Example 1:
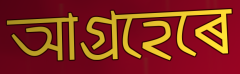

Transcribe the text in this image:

আগ্ৰহেৰে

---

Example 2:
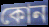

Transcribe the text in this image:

কোন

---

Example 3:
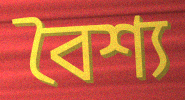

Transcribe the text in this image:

বৈশ্য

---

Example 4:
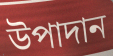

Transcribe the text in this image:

উপাদান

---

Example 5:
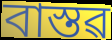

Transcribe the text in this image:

বাস্তৱ